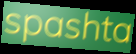
spashta